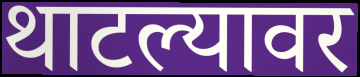
थाटल्यावर